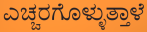
ಎಚ್ಚರಗೊಳ್ಳುತ್ತಾಳೆ